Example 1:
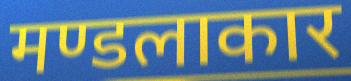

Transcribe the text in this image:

मण्डलाकार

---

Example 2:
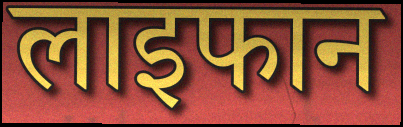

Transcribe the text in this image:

लाइफान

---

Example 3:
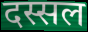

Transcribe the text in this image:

दस्सल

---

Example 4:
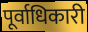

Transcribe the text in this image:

पूर्वाधिकारी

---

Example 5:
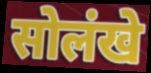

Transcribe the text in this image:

सोलंखे